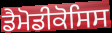
ਡੈਮੋਡੀਕੋਸਿਸ